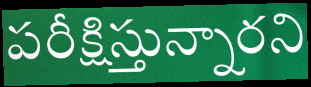
పరీక్షిస్తున్నారని